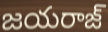
జయరాజ్